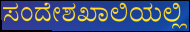
ಸಂದೇಶಖಾಲಿಯಲ್ಲಿ